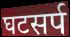
घटसर्प